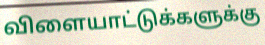
விளையாட்டுக்களுக்கு